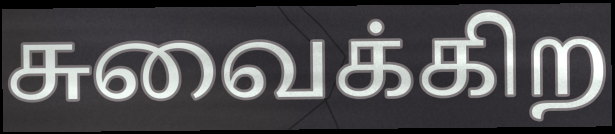
சுவைக்கிற